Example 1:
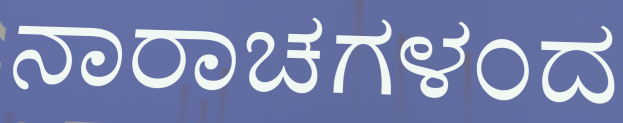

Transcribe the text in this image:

ನಾರಾಚಗಳಂದ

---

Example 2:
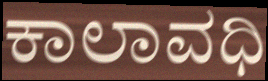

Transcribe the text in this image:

ಕಾಲಾವಧಿ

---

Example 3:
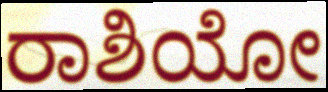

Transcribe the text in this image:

ರಾಶಿಯೋ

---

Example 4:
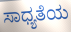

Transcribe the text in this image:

ಸಾಧ್ಯತೆಯ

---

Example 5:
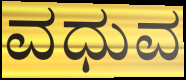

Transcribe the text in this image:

ವಧುವ